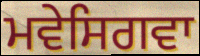
ਮਵੇਸਿਗਵਾ